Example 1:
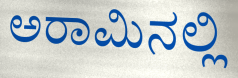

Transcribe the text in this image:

ಅರಾಮಿನಲ್ಲಿ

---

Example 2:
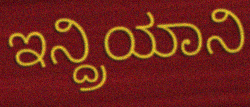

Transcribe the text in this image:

ಇನ್ದ್ರಿಯಾನಿ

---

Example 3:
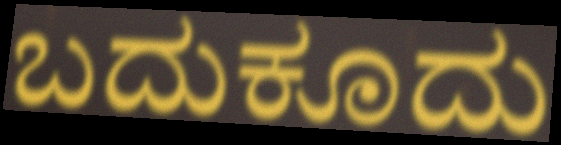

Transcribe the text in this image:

ಬದುಕೂದು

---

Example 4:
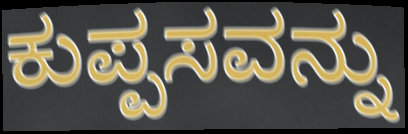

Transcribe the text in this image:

ಕುಪ್ಪಸವನ್ನು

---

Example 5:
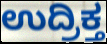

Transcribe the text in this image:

ಉದ್ರಿಕ್ತ